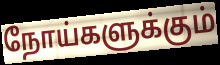
நோய்களுக்கும்